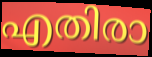
എതിരാ